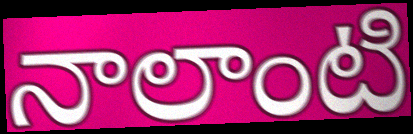
నాలాంటి